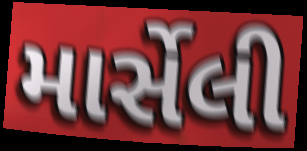
માર્સેલી